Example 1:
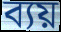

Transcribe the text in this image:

ব্যয়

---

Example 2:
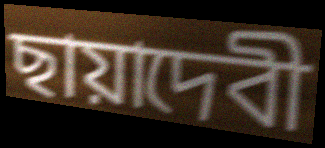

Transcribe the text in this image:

ছায়াদেবী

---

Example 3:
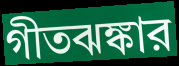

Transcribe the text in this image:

গীতঝঙ্কার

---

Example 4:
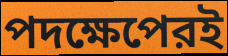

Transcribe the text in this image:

পদক্ষেপেরই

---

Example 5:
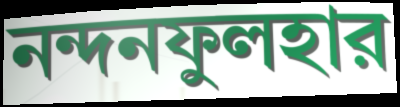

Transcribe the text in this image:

নন্দনফুলহার